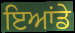
ਇਆਂਡੇ